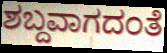
ಶಬ್ದವಾಗದಂತೆ